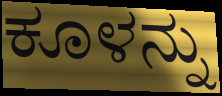
ಕೂಳನ್ನು